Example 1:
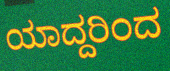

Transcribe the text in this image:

ಯಾದ್ದರಿಂದ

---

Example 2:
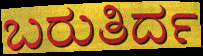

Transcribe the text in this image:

ಬರುತಿರ್ದ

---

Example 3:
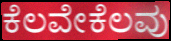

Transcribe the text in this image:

ಕೆಲವೇಕೆಲವು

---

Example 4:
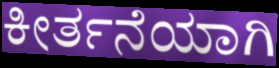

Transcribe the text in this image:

ಕೀರ್ತನೆಯಾಗಿ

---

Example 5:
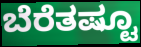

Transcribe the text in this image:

ಬೆರೆತಷ್ಟೂ